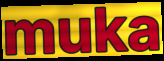
muka